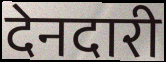
देनदारी